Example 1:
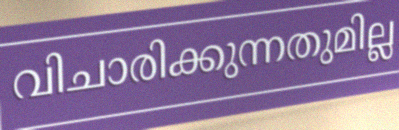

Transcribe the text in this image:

വിചാരിക്കുന്നതുമില്ല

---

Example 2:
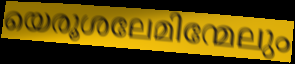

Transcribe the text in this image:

യെരൂശലേമിന്മേലും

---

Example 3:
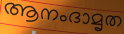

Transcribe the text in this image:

ആനംദാമൃത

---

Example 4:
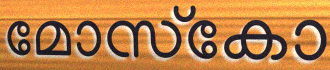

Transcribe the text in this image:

മോസ്‌കോ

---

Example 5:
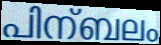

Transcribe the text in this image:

പിന്ബലം